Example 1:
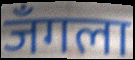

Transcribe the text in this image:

जँगला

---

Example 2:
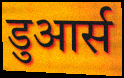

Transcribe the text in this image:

डुआर्स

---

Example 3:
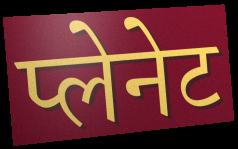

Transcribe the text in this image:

प्लेनेट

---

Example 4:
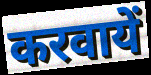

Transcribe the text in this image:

करवायें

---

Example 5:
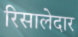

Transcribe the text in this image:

रिसालेदार